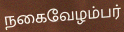
நகைவேழம்பர்